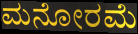
ಮನೋರಮೆ